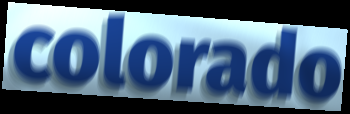
colorado